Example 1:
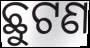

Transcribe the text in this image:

ଛୁଟଣ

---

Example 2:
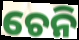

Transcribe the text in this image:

ଚେନି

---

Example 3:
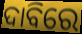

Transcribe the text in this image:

ଦାବିରେ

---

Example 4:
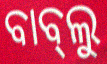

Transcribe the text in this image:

ବାବ୍‍ଲୁ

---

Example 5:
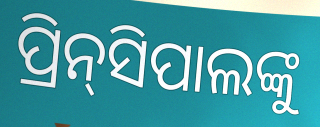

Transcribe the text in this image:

ପ୍ରିନ୍‌ସିପାଲଙ୍କୁ